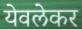
येवलेकर